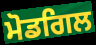
ਮੋਡਗਿਲ